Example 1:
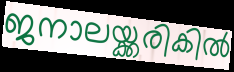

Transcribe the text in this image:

ജനാലയ്ക്കരികിൽ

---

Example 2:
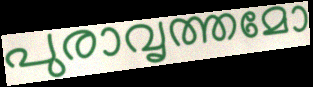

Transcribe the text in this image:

പുരാവൃത്തമോ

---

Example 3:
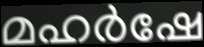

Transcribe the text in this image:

മഹർഷേ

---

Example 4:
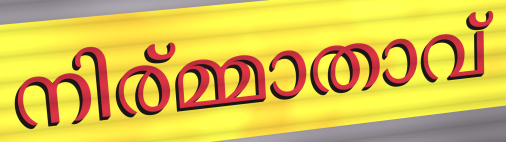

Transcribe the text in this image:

നിര്മ്മാതാവ്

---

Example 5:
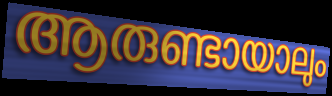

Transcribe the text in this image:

ആരുണ്ടായാലും